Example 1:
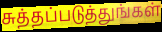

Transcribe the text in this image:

சுத்தப்படுத்துங்கள்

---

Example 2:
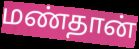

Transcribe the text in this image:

மண்தான்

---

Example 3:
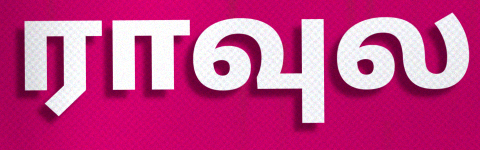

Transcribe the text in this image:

ராவுல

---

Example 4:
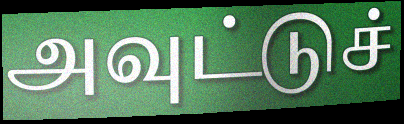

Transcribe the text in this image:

அவுட்டுச்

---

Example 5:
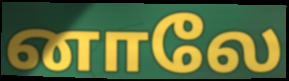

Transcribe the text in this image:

னாலே